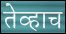
तेव्हाच